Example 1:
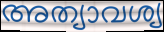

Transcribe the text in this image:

അത്യാവശ്യ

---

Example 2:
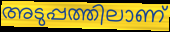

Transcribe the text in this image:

അടുപ്പത്തിലാണ്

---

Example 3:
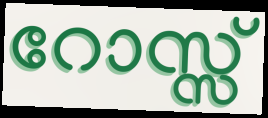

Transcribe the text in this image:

റോസ്സ്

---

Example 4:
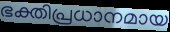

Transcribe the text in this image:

ഭക്തിപ്രധാനമായ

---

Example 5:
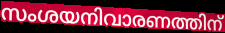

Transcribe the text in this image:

സംശയനിവാരണത്തിന്